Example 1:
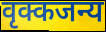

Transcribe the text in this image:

वृक्कजन्य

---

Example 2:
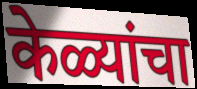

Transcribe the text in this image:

केळ्यांचा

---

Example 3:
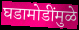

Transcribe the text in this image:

घडामोडींमुळे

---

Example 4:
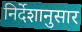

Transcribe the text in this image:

निर्देशानुसार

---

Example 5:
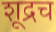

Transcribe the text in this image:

शूद्रच